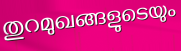
തുറമുഖങ്ങളുടെയും